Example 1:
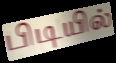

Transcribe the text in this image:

பிடியில்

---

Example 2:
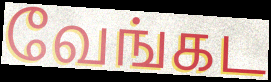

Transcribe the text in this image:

வேங்கட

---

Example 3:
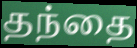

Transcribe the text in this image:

தந்தை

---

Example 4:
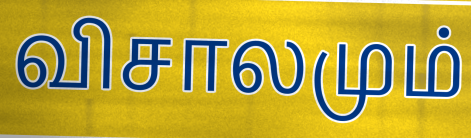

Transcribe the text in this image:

விசாலமும்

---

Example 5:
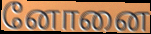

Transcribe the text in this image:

னோனை